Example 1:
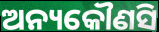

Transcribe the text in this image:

ଅନ୍ୟକୌଣସି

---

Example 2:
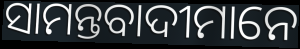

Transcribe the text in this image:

ସାମନ୍ତବାଦୀମାନେ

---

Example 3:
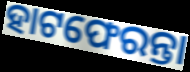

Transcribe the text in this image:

ହାଟଫେରନ୍ତା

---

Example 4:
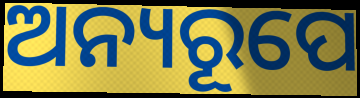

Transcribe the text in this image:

ଅନ୍ୟରୂପେ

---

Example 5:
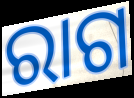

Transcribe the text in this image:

ରାଗ